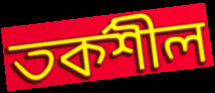
তর্কশীল